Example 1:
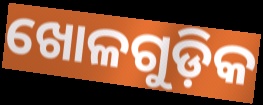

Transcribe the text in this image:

ଖୋଳଗୁଡ଼ିକ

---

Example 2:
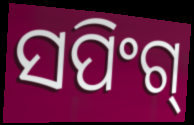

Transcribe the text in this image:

ସପିଂଗ୍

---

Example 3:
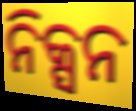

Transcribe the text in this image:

ନିକ୍ସନ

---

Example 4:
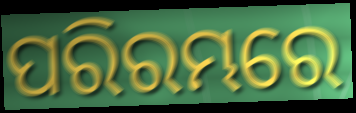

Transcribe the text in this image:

ପରିରମ୍ଭରେ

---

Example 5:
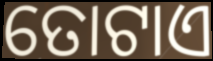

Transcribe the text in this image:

ତୋଟାଏ